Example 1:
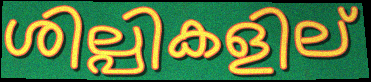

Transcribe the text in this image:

ശില്പികളില്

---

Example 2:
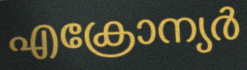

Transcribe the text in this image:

എക്രോന്യർ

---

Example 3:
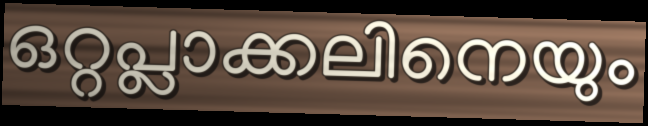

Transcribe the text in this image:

ഒറ്റപ്ലാക്കലിനെയും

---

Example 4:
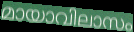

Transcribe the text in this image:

മായാവിലാസം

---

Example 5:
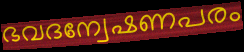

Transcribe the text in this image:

ഭവദന്വേഷണപരം